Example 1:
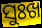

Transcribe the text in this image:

ସୁଃଖ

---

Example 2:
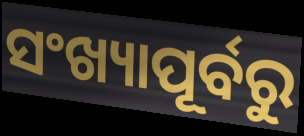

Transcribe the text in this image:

ସଂଖ୍ୟାପୂର୍ବରୁ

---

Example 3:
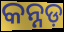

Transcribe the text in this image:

କନ୍ନଡ଼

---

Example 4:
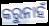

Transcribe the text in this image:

କରୁନାହଁ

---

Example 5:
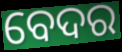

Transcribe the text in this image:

ବେଦର